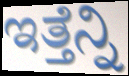
ಇತ್ತೆನ್ನಿ